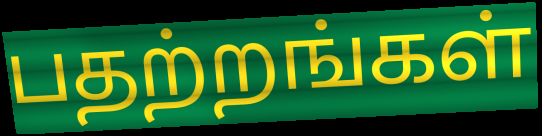
பதற்றங்கள்